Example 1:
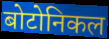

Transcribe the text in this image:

बोटोनिकल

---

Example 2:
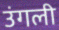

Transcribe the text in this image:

उंगली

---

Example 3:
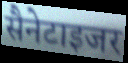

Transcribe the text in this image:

सैनेटाइजर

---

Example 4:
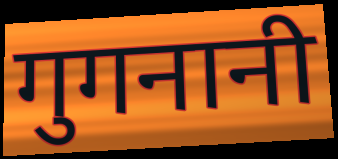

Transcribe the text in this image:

गुगनानी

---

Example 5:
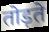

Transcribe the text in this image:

तोड़ते